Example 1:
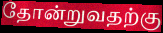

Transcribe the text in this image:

தோன்றுவதற்கு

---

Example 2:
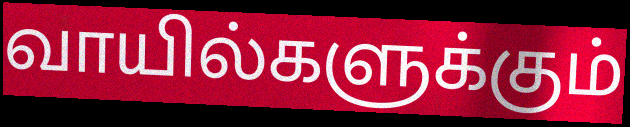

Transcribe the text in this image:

வாயில்களுக்கும்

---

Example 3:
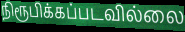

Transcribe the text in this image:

நிரூபிக்கப்படவில்லை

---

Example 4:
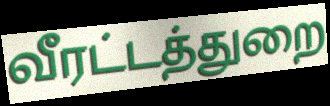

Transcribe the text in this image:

வீரட்டத்துறை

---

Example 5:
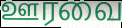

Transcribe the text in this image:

ஊரவை